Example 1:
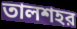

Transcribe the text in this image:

তালশহর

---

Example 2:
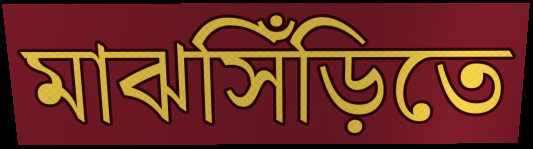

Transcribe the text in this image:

মাঝসিঁড়িতে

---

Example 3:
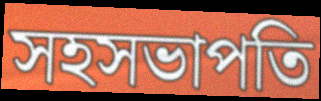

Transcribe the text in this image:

সহসভাপতি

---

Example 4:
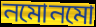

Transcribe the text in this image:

নমোনমো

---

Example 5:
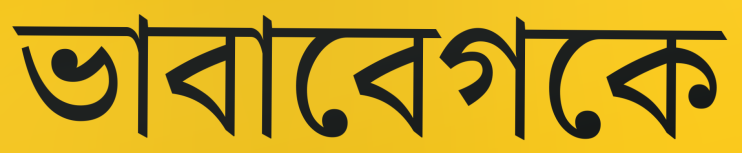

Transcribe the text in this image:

ভাবাবেগকে